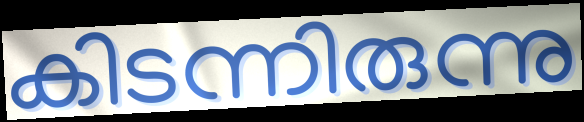
കിടന്നിരുന്നു